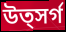
উত্সর্গ